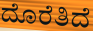
ದೊರೆತಿದೆ